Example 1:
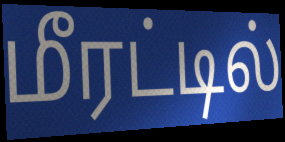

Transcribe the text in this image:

மீரட்டில்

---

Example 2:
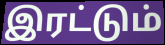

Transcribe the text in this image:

இரட்டும்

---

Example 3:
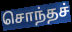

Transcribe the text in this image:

சொந்தச்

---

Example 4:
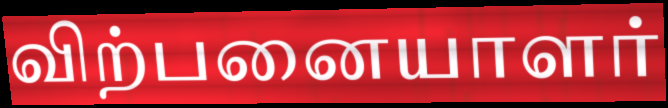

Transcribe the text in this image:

விற்பனையாளர்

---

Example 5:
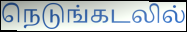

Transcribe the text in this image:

நெடுங்கடலில்